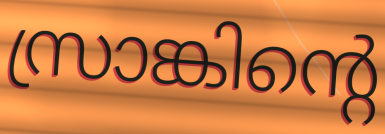
സ്രാങ്കിന്റെ